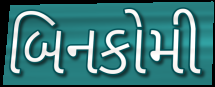
બિનકોમી